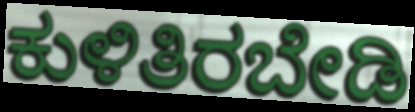
ಕುಳಿತಿರಬೇಡಿ